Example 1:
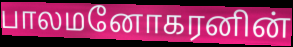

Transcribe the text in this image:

பாலமனோகரனின்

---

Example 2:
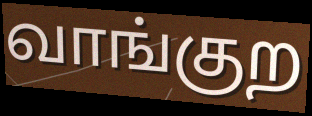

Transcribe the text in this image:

வாங்குற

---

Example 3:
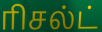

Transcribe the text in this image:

ரிசல்ட்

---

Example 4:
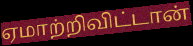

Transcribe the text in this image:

ஏமாற்றிவிட்டான்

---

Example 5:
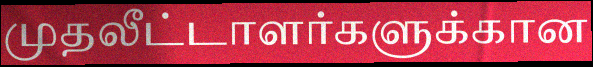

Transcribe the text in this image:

முதலீட்டாளர்களுக்கான